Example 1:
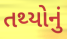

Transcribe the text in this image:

તથ્યોનું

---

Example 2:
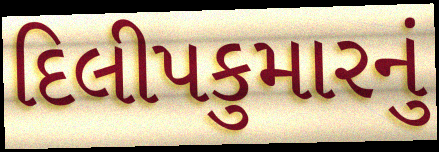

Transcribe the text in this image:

દિલીપકુમારનું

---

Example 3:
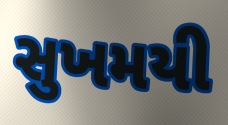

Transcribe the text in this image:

સુખમયી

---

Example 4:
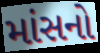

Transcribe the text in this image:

માંસનો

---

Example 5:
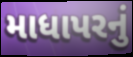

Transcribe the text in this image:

માધાપરનું